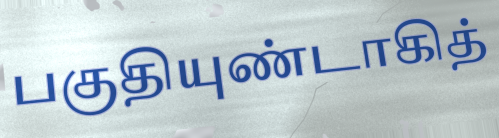
பகுதியுண்டாகித்